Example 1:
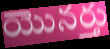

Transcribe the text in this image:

యొనర్తు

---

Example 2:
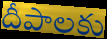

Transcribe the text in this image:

దీపాలకు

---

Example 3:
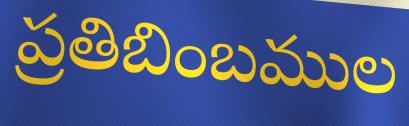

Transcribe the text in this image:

ప్రతిబింబముల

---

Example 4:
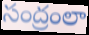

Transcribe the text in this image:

సంద్రంలా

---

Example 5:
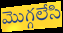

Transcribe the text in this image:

మొగ్గలేసి